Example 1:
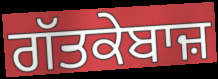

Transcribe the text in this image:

ਗੱਤਕੇਬਾਜ਼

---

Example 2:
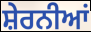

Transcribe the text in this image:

ਸ਼ੇਰਨੀਆਂ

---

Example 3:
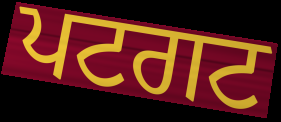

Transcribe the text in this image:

ਪਟਗਟ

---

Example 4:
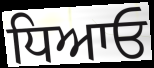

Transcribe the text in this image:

ਧਿਆਓ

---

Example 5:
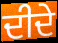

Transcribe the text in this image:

ਦੀਦੇ